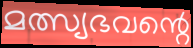
മത്സ്യഭവന്റെ